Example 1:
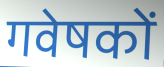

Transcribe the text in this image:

गवेषकों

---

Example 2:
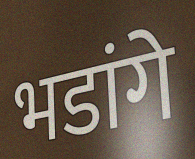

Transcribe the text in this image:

भडांगे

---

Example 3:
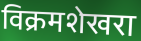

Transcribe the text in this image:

विक्रमशेखरा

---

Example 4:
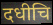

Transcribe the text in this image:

दधीचि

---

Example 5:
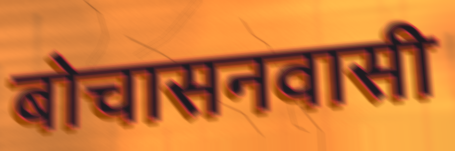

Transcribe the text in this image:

बोचासनवासी